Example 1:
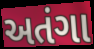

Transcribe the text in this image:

અતંગા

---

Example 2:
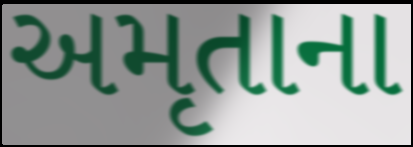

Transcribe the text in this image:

અમૃતાના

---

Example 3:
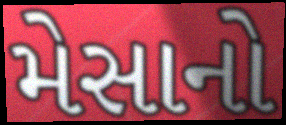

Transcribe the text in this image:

મેસાનો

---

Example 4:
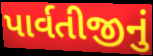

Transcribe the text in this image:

પાર્વતીજીનું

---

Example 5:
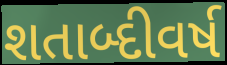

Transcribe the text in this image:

શતાબ્દીવર્ષ